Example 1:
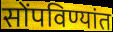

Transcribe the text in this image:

सोंपविण्यांत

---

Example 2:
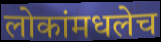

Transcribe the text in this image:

लोकांमधलेच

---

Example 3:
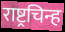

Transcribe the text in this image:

राष्ट्रचिन्ह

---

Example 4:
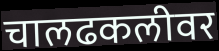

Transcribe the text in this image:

चालढकलीवर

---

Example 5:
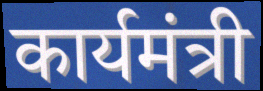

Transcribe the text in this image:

कार्यमंत्री